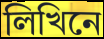
লিখিনে